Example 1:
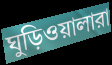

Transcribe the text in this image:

ঘুড়িওয়ালারা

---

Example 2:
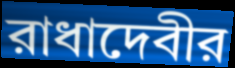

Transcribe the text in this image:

রাধাদেবীর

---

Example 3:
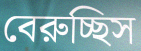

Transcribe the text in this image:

বেরুচ্ছিস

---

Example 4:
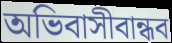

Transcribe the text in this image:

অভিবাসীবান্ধব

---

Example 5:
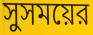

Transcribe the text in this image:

সুসময়ের